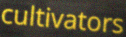
cultivators